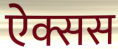
ऐक्सस